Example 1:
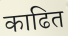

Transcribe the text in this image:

काढित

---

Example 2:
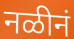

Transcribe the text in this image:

नळीनं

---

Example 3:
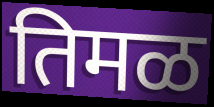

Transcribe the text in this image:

तिमळ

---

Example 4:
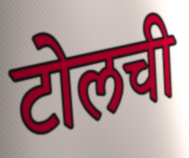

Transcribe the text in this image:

टोलची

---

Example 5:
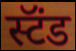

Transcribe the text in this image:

स्टॅंड